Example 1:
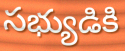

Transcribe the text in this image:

సభ్యుడికి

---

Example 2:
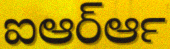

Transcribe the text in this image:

ఐఆర్ఆర్‍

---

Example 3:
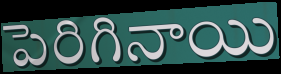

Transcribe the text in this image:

పెరిగినాయి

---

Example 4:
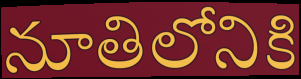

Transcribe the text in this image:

నూతిలోనికి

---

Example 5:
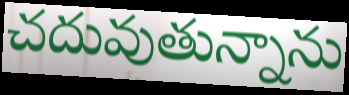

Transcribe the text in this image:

చదువుతున్నాను